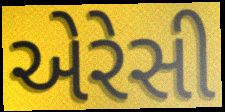
એરેસી